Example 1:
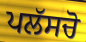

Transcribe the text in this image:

ਪਲੱਸਚੋ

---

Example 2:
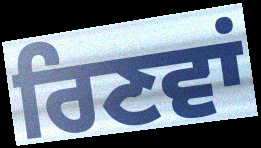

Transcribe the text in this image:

ਰਿਣਵਾਂ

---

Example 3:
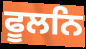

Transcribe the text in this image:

ਫੂਲਨਿ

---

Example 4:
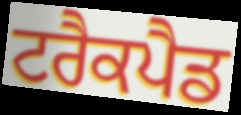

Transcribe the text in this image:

ਟਰੈਕਪੈਡ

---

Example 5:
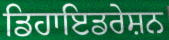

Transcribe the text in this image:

ਡਿਹਾਇਡਰੇਸ਼ਨ